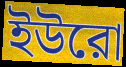
ইউরো